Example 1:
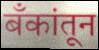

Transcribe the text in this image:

बँकांतून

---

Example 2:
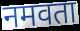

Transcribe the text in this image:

नमवता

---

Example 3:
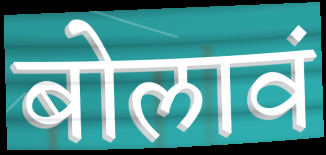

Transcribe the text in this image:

बोलावं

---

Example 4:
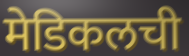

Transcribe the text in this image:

मेडिकलची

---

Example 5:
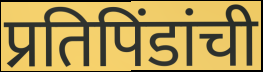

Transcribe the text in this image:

प्रतिपिंडांची